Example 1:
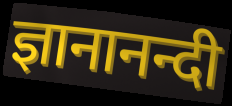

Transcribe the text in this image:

ज्ञानानन्दी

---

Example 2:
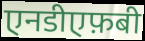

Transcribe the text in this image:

एनडीएफ़बी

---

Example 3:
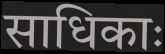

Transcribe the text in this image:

साधिकाः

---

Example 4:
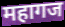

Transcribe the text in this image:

महागज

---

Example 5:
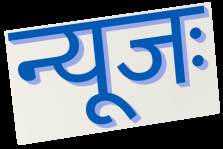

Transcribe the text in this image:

न्यूजः